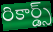
రికార్డ్స్